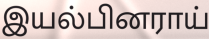
இயல்பினராய்